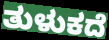
ತುಳುಕದೆ